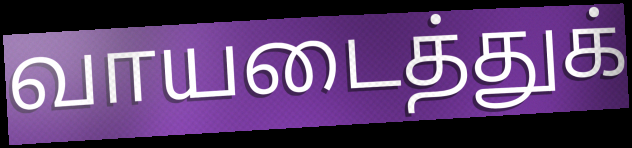
வாயடைத்துக்